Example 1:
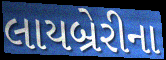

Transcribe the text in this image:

લાયબ્રેરીના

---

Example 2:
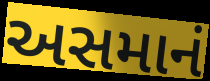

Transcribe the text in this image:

અસમાનં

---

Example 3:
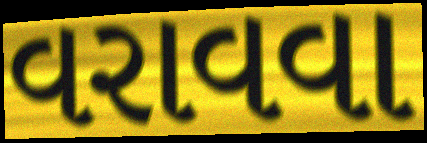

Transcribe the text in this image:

વરાવવા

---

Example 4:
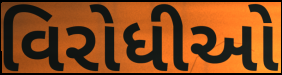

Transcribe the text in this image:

વિરોધીઓ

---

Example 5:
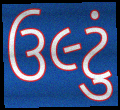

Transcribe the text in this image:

ઉલ્ટું